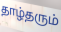
தாழ்தரும்